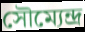
সৌম্যেন্দ্র